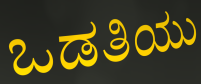
ಒಡತಿಯು